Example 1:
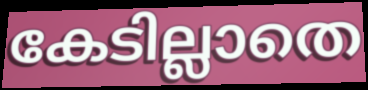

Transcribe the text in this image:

കേടില്ലാതെ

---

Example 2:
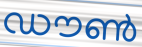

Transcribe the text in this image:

ഡൗൺ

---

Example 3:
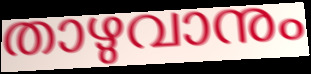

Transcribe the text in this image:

താഴുവാനും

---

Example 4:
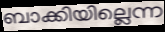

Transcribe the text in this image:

ബാക്കിയില്ലെന്ന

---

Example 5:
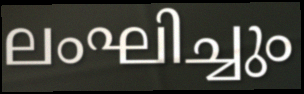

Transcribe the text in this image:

ലംഘിച്ചും